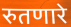
रुतणारे